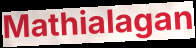
Mathialagan